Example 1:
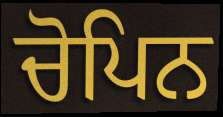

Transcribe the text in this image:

ਚੋਪਿਨ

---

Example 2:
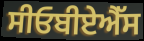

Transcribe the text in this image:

ਸੀਓਬੀਏਐੱਸ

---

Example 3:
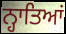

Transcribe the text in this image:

ਨ੍ਹਾਤਿਆਂ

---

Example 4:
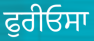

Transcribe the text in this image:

ਫੁਰੀਓਸਾ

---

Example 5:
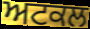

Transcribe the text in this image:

ਅਟਕਲ